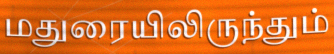
மதுரையிலிருந்தும்